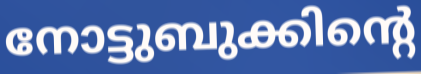
നോട്ടുബുക്കിന്റെ